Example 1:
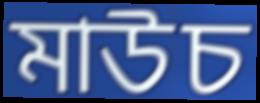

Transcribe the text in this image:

মাউচ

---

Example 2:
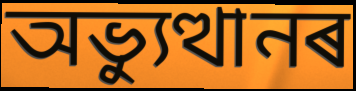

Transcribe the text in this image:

অভ্যুত্থানৰ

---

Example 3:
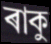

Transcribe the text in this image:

ৰাকু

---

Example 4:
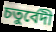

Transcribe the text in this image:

চতুৰ্বেদী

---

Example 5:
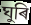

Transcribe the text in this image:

ঘুৰি